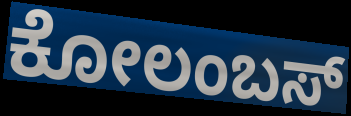
ಕೋಲಂಬಸ್